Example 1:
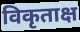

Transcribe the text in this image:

विकृताक्ष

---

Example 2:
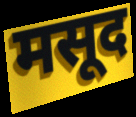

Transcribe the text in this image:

मसूद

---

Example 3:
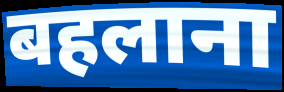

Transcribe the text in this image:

बहलाना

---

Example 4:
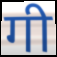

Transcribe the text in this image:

गी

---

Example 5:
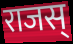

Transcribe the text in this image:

राजस्